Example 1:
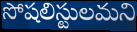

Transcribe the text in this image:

సోషలిస్టులమని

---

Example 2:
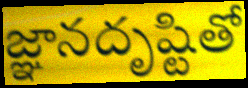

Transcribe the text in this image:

జ్ఞానదృష్టితో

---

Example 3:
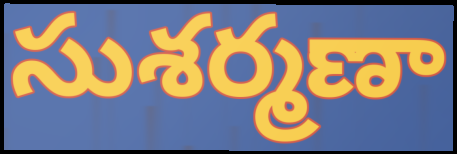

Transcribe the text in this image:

సుశర్మణా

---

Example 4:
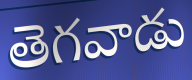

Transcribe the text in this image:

తెగవాడు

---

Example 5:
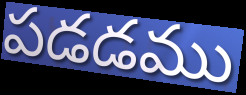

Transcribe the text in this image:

పడడము